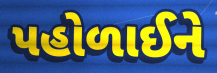
પહોળાઈને